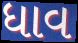
ધાવ